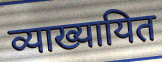
व्याख्यायित